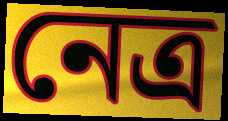
নেত্র